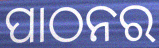
ପାଠନର